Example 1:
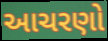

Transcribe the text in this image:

આચરણો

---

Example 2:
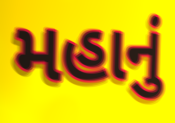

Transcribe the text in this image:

મહાનું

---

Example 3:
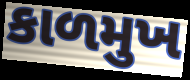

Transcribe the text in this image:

કાળમુખ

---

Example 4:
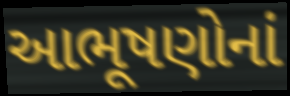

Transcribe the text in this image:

આભૂષણોનાં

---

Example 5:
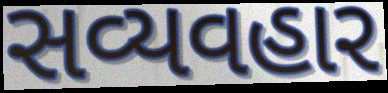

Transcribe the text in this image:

સવ્યવહાર